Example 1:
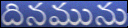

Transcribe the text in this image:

దినమును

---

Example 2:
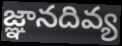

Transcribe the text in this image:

జ్ఞానదివ్య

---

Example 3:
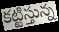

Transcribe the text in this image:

కట్టిస్తున్న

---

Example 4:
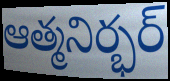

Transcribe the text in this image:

ఆత్మనిర్భర్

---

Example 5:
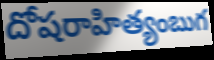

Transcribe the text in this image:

దోషరాహిత్యంబుగ